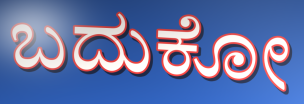
ಬದುಕೋ